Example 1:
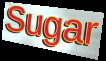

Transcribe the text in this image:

Sugar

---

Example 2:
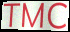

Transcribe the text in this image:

TMC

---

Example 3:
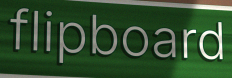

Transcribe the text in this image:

flipboard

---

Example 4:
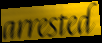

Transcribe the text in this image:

arrested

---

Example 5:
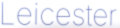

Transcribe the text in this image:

Leicester